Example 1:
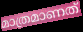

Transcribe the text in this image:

മാത്രമാണത്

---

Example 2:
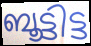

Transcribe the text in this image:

ബൂട്ടിട്ട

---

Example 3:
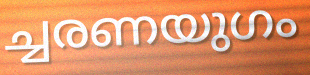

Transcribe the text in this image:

ച്ചരണയുഗം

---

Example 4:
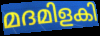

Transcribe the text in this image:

മദമിളകി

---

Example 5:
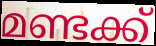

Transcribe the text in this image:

മണ്ടക്ക്